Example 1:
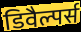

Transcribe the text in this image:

डिवैल्पर्स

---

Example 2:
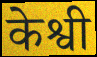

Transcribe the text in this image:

केश्वी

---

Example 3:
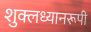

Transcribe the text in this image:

शुक्लध्यानरूपी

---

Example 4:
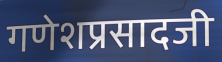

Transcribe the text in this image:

गणेशप्रसादजी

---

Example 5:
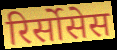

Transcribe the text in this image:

रिर्सोसेस